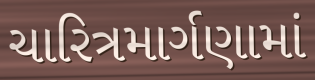
ચારિત્રમાર્ગણામાં